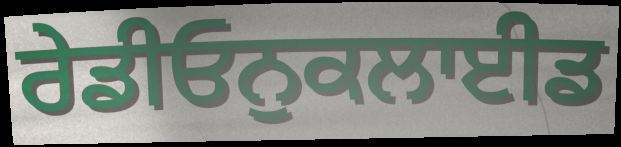
ਰੇਡੀਓਨੁਕਲਾਈਡ